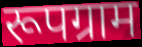
रूपग्राम